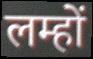
लम्हों